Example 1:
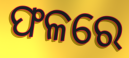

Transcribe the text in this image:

ଫଳରେ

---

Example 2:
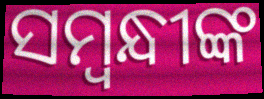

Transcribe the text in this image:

ସମ୍ବନ୍ଧୀଙ୍କ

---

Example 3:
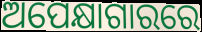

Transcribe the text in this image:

ଅପେକ୍ଷାଗାରରେ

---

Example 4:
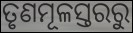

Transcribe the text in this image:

ତୃଣମୂଳସ୍ତରରୁ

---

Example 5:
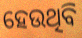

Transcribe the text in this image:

ହେଉଥିବି